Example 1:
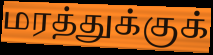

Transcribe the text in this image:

மரத்துக்குக்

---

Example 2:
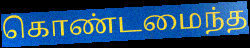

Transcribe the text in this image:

கொண்டமைந்த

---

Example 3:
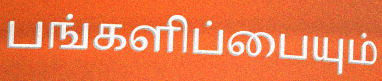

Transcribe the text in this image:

பங்களிப்பையும்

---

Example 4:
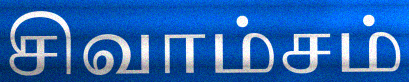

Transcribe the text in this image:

சிவாம்சம்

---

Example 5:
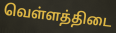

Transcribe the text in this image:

வெள்ளத்திடை